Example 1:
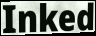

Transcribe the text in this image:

Inked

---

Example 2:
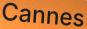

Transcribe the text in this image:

Cannes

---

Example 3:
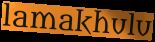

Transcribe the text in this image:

lamakhulu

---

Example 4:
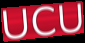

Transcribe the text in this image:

UCU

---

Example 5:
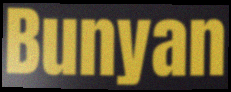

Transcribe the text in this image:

Bunyan